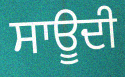
ਸਾਊਦੀ